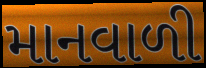
માનવાળી